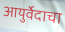
आयुर्वेदाचा